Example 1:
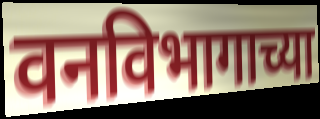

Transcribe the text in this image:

वनविभागाच्या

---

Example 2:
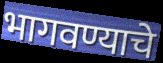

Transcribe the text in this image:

भागवण्याचे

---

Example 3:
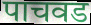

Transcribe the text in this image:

पाचवड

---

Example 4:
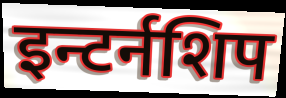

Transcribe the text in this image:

इन्टर्नशिप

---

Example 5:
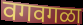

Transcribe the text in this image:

वगवगळा